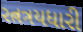
રત્નત્રયધારી